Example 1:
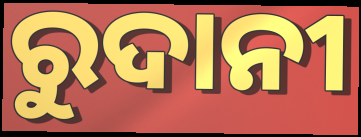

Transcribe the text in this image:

ରୁଦାନୀ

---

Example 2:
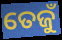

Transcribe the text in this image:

ତେଜୁଁ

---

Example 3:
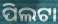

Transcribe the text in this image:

ପିଲଟା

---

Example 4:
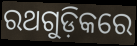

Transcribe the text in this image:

ରଥଗୁଡ଼ିକରେ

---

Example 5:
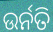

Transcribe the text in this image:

ଉର୍ନତି